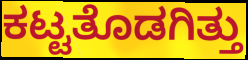
ಕಟ್ಟತೊಡಗಿತ್ತು